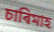
চাৰিমাহ